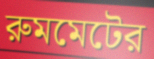
রুমমেটের